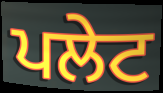
ਪਲੇਟ